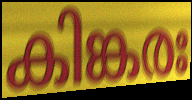
കിങ്കരഃ